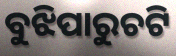
ବୁଝିପାରୁଚଟି